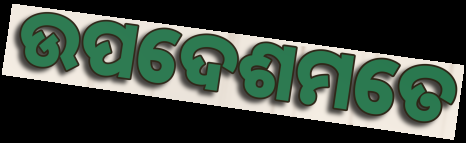
ଉପଦେଶମତେ